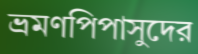
ভ্রমণপিপাসুদের